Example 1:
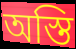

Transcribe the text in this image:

অস্তি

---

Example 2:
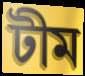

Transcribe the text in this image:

টীম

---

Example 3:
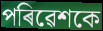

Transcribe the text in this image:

পৰিৱেশকে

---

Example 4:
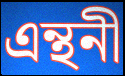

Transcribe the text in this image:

এন্থনী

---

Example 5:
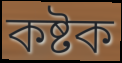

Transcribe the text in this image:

কষ্টক